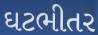
ઘટભીતર